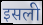
इसली